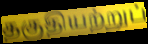
தகுதியற்றுப்